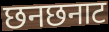
छनछनाट